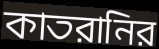
কাতরানির